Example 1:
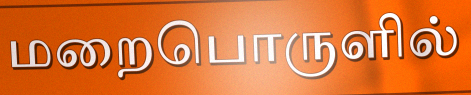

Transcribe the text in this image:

மறைபொருளில்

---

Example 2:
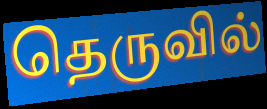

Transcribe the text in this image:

தெருவில்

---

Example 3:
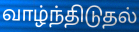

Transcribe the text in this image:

வாழ்ந்திடுதல்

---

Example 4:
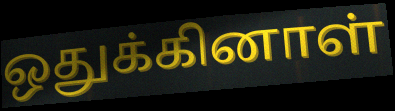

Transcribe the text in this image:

ஒதுக்கினாள்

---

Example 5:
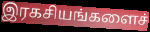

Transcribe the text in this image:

இரகசியங்களைச்